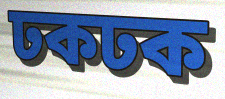
ঢকঢক